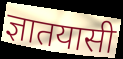
ज्ञातयासी